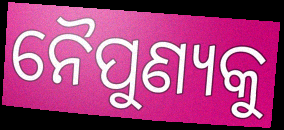
ନୈପୁଣ୍ୟକୁ